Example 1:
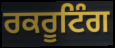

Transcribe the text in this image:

ਰਕਰੂਟਿੰਗ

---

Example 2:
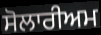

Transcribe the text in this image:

ਸੋਲਾਰੀਅਮ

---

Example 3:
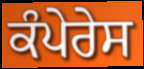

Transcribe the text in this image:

ਕੰਪੇਰੇਸ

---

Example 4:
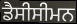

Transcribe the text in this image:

ਡੈਸੀਸੀਮਨ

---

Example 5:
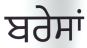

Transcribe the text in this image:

ਬਰੇਸਾਂ